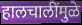
हालचालींमुळे